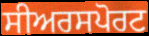
ਸੀਅਰਸਪੋਰਟ